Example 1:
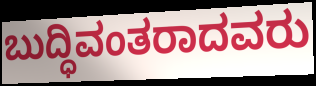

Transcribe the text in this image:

ಬುದ್ಧಿವಂತರಾದವರು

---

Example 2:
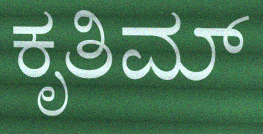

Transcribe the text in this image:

ಕೃತಿಮ್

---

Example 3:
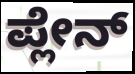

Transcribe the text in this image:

ಪ್ಲೇನ್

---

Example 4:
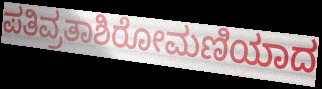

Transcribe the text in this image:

ಪತಿವ್ರತಾಶಿರೋಮಣಿಯಾದ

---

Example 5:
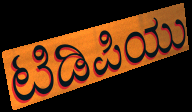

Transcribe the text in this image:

ಟಿಡಿಪಿಯು